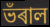
ভঁৰাল